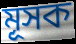
মূসক